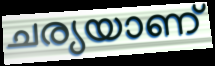
ചര്യയാണ്